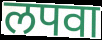
लपवा